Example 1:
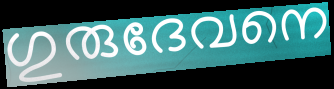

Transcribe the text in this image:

ഗുരുദേവനെ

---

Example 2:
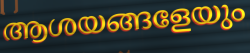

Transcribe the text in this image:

ആശയങ്ങളേയും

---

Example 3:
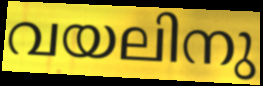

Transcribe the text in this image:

വയലിനു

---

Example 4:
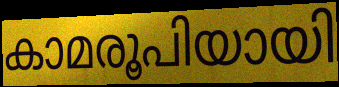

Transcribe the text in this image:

കാമരൂപിയായി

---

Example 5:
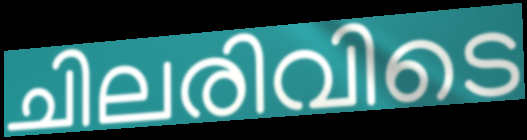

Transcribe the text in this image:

ചിലരിവിടെ